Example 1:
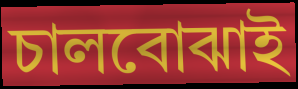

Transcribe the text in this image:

চালবোঝাই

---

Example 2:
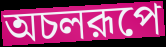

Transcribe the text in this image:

অচলরূপে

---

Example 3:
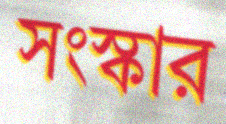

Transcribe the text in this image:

সংস্কার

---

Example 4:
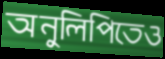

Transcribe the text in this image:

অনুলিপিতেও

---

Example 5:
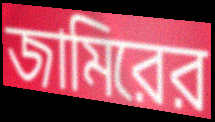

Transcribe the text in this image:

জামিরের